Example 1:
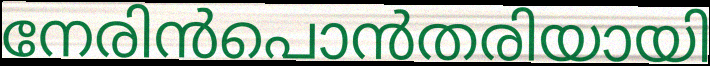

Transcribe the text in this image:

നേരിൻപൊൻതരിയായി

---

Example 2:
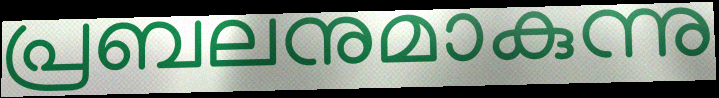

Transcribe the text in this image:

പ്രബലനുമാകുന്നു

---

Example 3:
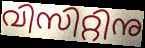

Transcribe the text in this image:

വിസിറ്റിനു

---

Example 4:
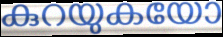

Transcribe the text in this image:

കുറയുകയോ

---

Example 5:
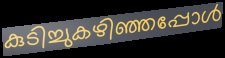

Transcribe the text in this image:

കുടിച്ചുകഴിഞ്ഞപ്പോൾ